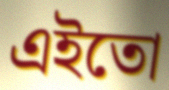
এইতো